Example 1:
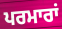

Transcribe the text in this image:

ਪਰਮਾਰਾਂ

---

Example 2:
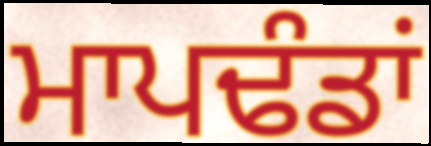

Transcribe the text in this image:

ਮਾਪਢੰਡਾਂ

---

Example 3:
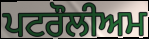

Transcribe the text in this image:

ਪਟਰੌਲੀਅਮ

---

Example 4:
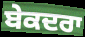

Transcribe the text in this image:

ਬੇਕਦਰਾ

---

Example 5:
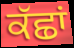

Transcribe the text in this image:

ਕੱਛਾਂ